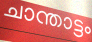
ചാന്താട്ടം